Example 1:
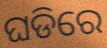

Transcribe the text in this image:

ଘଡିରେ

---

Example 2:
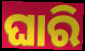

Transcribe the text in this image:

ଘାରି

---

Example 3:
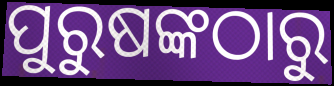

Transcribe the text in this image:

ପୁରୁଷଙ୍କଠାରୁ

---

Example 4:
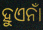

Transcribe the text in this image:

ହୁଏନାଁ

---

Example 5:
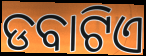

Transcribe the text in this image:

ଡବାଟିଏ